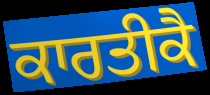
ਕਾਰਤੀਕੈ